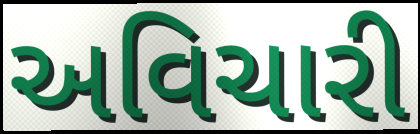
અવિચારી